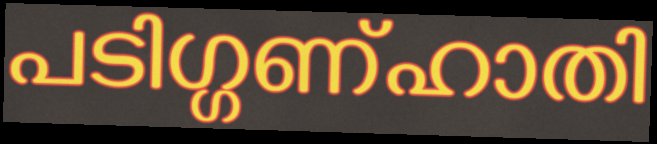
പടിഗ്ഗണ്ഹാതി